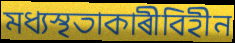
মধ্যস্থতাকাৰীবিহীন